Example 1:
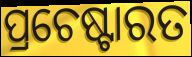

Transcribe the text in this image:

ପ୍ରଚେଷ୍ଟାରତ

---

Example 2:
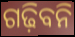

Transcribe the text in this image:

ଗଢ଼ିବନି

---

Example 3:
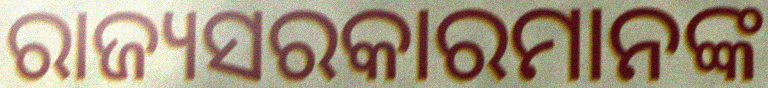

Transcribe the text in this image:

ରାଜ୍ୟସରକାରମାନଙ୍କ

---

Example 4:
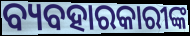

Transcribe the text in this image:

ବ୍ୟବହାରକାରୀଙ୍କ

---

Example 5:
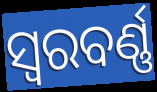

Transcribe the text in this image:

ସ୍ୱରବର୍ଣ୍ଣ